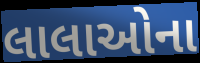
લાલાઓના